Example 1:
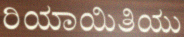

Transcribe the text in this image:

ರಿಯಾಯಿತಿಯು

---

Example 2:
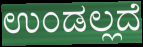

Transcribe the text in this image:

ಉಂಡಲ್ಲದೆ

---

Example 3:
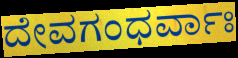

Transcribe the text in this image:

ದೇವಗಂಧರ್ವಾಃ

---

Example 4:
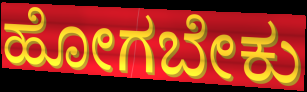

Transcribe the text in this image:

ಹೋಗಬೇಕು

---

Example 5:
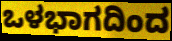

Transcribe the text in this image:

ಒಳಭಾಗದಿಂದ